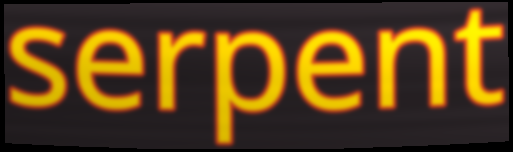
serpent